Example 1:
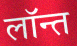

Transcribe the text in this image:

लॉन्त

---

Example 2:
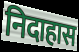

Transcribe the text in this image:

निदाहास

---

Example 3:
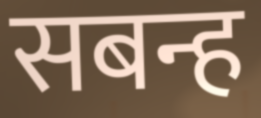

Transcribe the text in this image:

सबन्ह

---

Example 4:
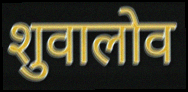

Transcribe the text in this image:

शुवालोव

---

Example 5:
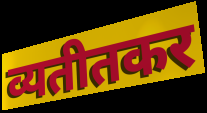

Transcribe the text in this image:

व्यतीतकर